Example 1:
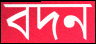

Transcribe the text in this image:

বদন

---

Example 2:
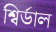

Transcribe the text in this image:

শ্বিৰ্ডাল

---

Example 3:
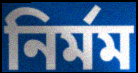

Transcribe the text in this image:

নিৰ্মম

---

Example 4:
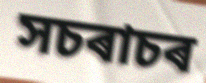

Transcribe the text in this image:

সচৰাচৰ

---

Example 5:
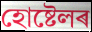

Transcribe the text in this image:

হোষ্টেলৰ